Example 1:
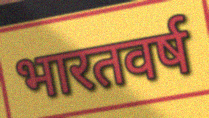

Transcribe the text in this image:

भारतवर्ष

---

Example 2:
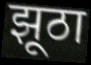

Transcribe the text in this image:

झूठा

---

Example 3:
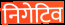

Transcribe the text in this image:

निगेटिव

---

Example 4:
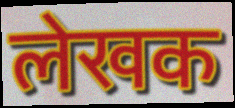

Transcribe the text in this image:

लेखक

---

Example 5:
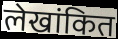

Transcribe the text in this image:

लेखांकित